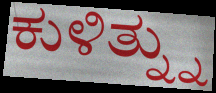
ಕುಳಿತ್ನ್ನು